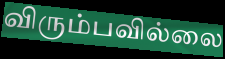
விரும்பவில்லை